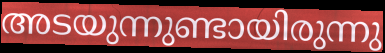
അടയുന്നുണ്ടായിരുന്നു